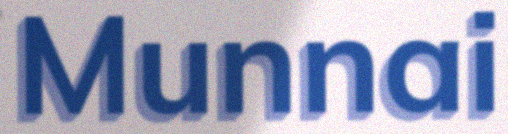
Munnai